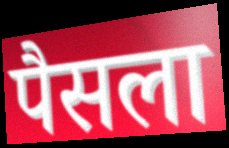
पैसला